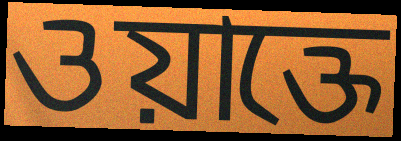
ওয়াক্তে